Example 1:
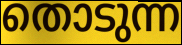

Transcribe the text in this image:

തൊടുന്ന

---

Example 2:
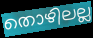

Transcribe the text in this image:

തൊഴിലല്ല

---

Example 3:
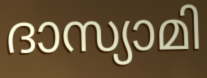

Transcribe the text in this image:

ദാസ്യാമി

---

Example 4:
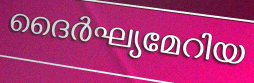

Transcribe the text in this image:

ദൈർഘ്യമേറിയ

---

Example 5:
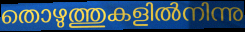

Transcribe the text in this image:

തൊഴുത്തുകളിൽനിന്നു